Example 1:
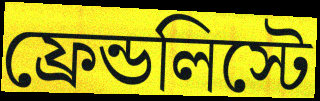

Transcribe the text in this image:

ফ্রেন্ডলিস্টে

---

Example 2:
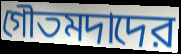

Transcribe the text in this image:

গৌতমদাদের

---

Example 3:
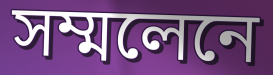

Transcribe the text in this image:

সম্মলেনে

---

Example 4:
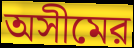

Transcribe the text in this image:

অসীমের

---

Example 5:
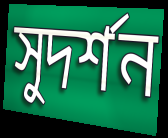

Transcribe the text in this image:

সুদর্শন